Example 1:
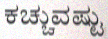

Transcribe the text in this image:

ಕಚ್ಚುವಷ್ಟು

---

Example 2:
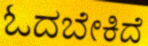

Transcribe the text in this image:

ಓದಬೇಕಿದೆ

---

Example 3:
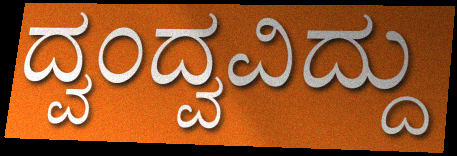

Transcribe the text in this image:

ದ್ವಂದ್ವವಿದ್ದು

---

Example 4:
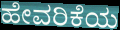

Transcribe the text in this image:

ಹೇವರಿಕೆಯ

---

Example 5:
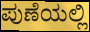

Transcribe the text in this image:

ಪುಣೆಯಲ್ಲಿ